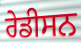
ਰੇਡੀਸਨ